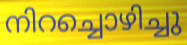
നിറച്ചൊഴിച്ചു